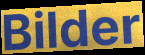
Bilder